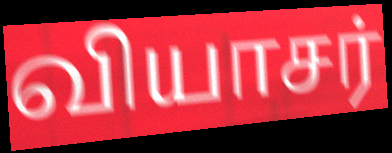
வியாசர்